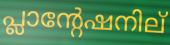
പ്ലാന്റേഷനില്